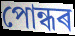
পোন্ধৰ